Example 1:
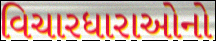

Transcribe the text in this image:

વિચારધારાઓનો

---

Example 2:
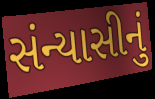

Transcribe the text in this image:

સંન્યાસીનું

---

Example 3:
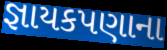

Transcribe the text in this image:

જ્ઞાયકપણાના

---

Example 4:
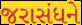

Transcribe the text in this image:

જરાસંધને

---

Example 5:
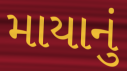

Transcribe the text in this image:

માયાનું